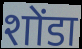
शोंडा